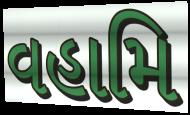
વહામિ